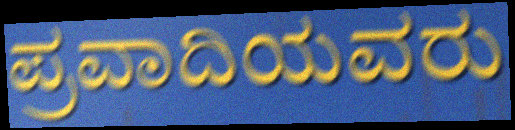
ಪ್ರವಾದಿಯವರು